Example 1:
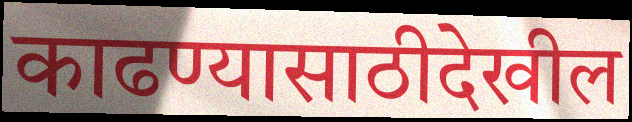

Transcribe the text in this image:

काढण्यासाठीदेखील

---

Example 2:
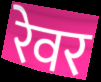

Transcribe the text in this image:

रेवर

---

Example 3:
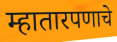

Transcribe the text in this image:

म्हातारपणाचे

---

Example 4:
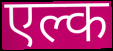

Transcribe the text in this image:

एल्क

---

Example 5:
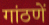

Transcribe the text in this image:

गांठणें